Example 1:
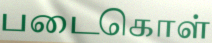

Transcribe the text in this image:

படைகொள்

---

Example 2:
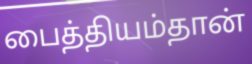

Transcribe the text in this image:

பைத்தியம்தான்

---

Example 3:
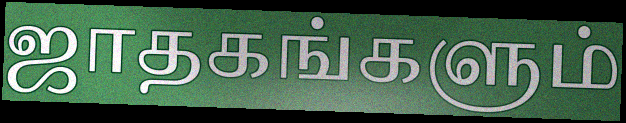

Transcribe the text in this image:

ஜாதகங்களும்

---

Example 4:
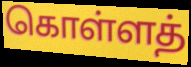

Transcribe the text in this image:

கொள்ளத்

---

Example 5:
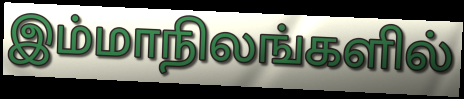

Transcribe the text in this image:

இம்மாநிலங்களில்